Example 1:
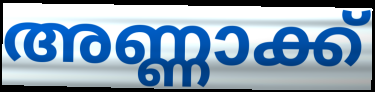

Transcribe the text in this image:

അണ്ണാക്ക്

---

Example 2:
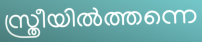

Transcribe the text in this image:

സ്ത്രീയിൽത്തന്നെ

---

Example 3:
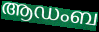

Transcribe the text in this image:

ആഡംബ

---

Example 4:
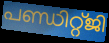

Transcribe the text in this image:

പണ്ഡിറ്റ്ജി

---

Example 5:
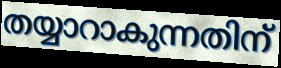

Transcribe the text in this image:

തയ്യാറാകുന്നതിന്